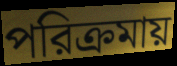
পরিক্রমায়